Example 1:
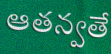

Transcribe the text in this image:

ఆతన్వతే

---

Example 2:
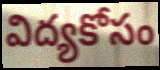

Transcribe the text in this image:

విద్యకోసం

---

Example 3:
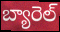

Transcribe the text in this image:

బ్యారెల్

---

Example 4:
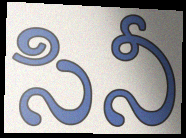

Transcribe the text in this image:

సినీ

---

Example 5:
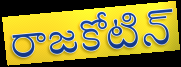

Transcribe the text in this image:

రాజకోటిన్